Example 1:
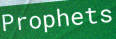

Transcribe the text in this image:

Prophets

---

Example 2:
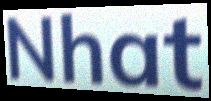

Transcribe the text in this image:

Nhat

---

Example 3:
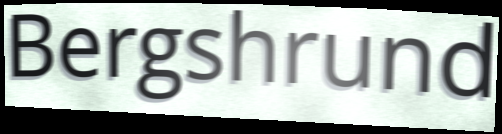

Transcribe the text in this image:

Bergshrund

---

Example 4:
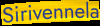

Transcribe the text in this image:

Sirivennela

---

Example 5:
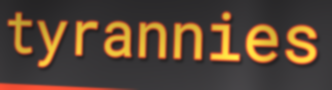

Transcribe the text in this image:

tyrannies